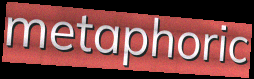
metaphoric